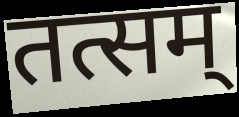
तत्सम्